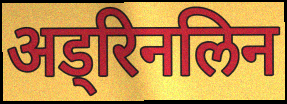
अड्रिनलिन